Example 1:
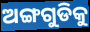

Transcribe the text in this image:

ଅଙ୍ଗଗୁଡିକୁ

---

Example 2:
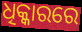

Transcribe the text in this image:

ଧିକ୍କାରରେ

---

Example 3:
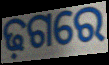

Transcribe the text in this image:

ଢ଼ଗରେ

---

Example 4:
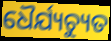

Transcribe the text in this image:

ଧୈର୍ଯ୍ୟଚ୍ୟୁତ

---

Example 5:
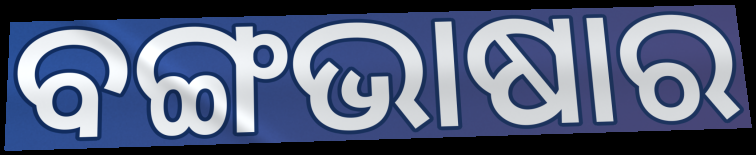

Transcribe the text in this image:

ବଙ୍ଗଭାଷାର